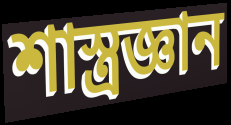
শাস্ত্রজ্ঞান